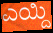
ಎಯ್ದಿ